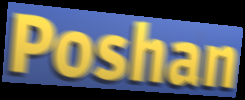
Poshan